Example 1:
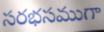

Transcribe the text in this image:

సరభసముగా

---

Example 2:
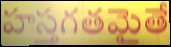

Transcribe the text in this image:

హస్తగతమైతే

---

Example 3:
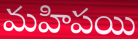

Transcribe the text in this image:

మహిపయి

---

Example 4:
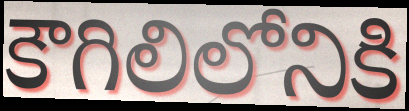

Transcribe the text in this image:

కౌగిలిలోనికి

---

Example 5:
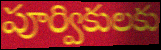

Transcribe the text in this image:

పూర్వికులకు